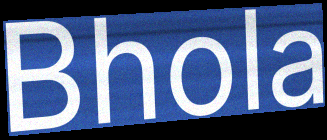
Bhola